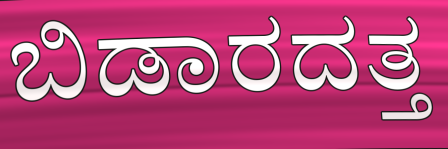
ಬಿಡಾರದತ್ತ